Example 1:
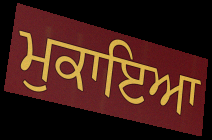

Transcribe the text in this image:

ਮੁਕਾਇਆ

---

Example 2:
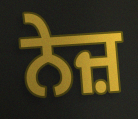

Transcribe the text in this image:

ਨੇਜ਼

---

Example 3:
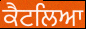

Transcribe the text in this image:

ਕੈਟਲਿਆ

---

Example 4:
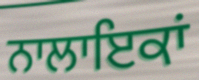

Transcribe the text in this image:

ਨਾਲਾਇਕਾਂ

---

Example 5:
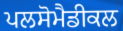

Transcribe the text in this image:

ਪਲਸੋਮੈਡੀਕਲ